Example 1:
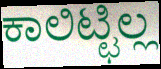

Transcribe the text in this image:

ಕಾಲಿಟ್ಟಿಲ್ಲ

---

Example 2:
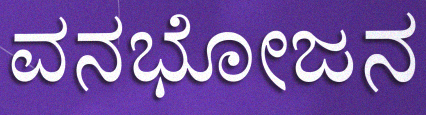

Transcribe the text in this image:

ವನಭೋಜನ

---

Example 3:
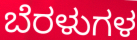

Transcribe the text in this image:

ಬೆರಳುಗಳ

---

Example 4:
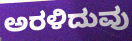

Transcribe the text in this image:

ಅರಳಿದುವು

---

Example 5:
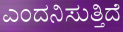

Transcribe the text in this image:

ಎಂದನಿಸುತ್ತಿದೆ